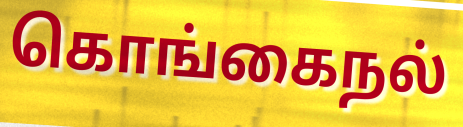
கொங்கைநல்